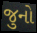
જુનો